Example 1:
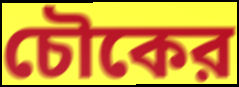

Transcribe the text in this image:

চৌকের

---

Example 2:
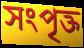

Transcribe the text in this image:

সংপৃক্ত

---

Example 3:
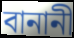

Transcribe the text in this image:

বানানী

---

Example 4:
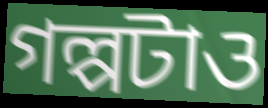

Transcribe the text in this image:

গল্পটাও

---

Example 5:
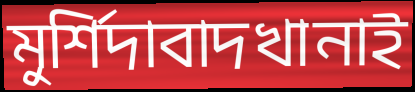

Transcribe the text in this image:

মুর্শিদাবাদখানাই